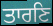
ਤਾਰਣਿ